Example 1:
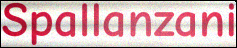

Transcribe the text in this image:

Spallanzani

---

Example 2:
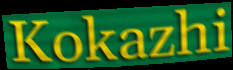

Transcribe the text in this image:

Kokazhi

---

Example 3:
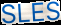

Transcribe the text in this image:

SLES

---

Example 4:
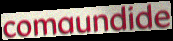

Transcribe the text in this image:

comaundide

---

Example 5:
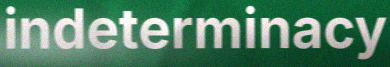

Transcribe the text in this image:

indeterminacy